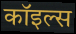
कॉइल्स